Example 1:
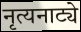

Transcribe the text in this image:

नृत्यनाट्ये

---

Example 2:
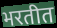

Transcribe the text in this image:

भरतीत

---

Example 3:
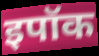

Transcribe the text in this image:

इपॉक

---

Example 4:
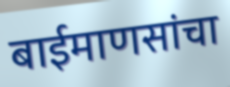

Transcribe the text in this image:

बाईमाणसांचा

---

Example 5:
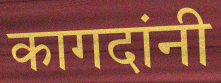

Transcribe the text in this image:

कागदांनी